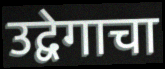
उद्वेगाचा